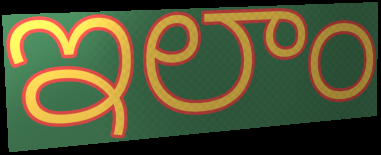
ఇలాం